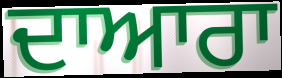
ਦਾਆਰਾ